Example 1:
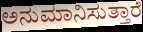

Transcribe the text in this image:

ಅನುಮಾನಿಸುತ್ತಾರೆ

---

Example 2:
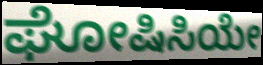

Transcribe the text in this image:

ಘೋಷಿಸಿಯೇ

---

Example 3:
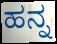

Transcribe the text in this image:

ಹನ್ನ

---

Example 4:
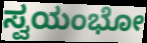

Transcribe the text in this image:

ಸ್ವಯಂಭೋ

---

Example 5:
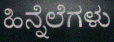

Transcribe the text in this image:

ಹಿನ್ನೆಲೆಗಳು